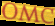
OMC